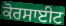
ਕੋਰਸਾਈਟ